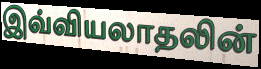
இவ்வியலாதலின்